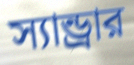
স্যান্ড্রার